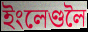
ইংলেণ্ডলৈ